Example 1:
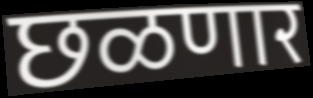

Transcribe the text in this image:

छळणार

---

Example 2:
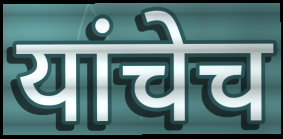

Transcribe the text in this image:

यांचेच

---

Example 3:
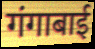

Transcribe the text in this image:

गंगाबाई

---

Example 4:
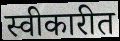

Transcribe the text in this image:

स्वीकारीत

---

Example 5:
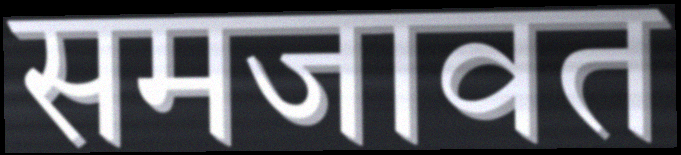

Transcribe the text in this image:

समजावत